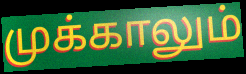
முக்காலும்